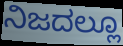
ನಿಜದಲ್ಲೂ